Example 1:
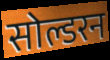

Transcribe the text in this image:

सोल्डरन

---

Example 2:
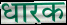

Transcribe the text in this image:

धारक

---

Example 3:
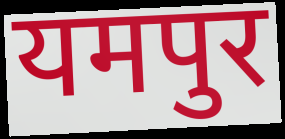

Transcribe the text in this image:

यमपुर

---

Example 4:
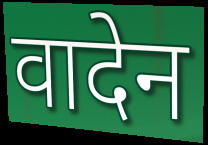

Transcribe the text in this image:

वादेन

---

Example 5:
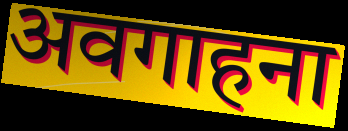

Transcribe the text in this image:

अवगाहना